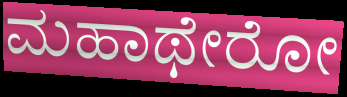
ಮಹಾಥೇರೋ